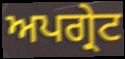
ਅਪਗ੍ਰੇਟ